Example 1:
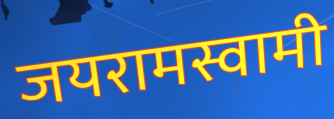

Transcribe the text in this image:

जयरामस्वामी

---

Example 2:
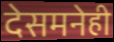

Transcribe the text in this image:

देसमनेही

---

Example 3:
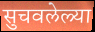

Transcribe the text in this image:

सुचवलेल्या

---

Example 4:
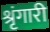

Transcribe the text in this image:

श्रृंगारी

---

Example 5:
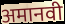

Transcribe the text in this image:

अमानवी